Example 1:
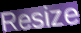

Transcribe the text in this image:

Resize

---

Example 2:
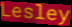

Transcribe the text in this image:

Lesley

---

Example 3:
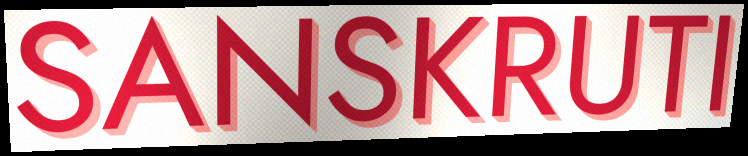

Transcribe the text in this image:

SANSKRUTI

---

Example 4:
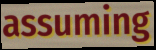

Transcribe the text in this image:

assuming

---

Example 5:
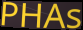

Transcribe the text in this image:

PHAs